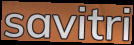
savitri